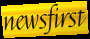
newsfirst